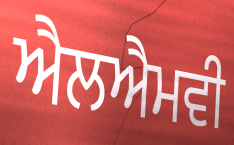
ਐਲਐਮਵੀ